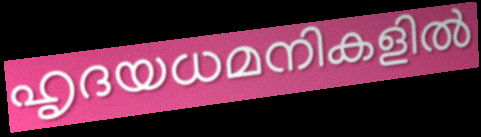
ഹൃദയധമനികളിൽ